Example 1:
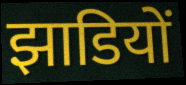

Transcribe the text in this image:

झाडियों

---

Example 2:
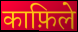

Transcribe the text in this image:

काफ़िले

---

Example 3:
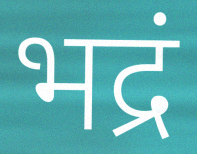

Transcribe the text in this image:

भद्रं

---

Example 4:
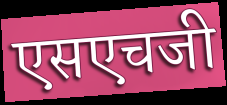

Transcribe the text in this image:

एसएचजी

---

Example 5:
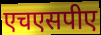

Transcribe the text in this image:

एचएसपीए